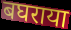
बघराया